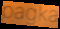
pagka